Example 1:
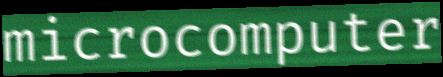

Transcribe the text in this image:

microcomputer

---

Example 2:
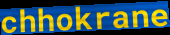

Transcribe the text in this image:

chhokrane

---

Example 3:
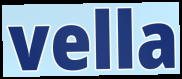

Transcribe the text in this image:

vella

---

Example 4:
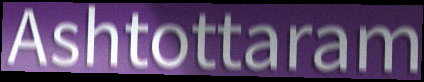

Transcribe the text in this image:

Ashtottaram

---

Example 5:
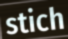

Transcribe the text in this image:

stich